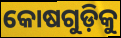
କୋଷଗୁଡ଼ିକୁ